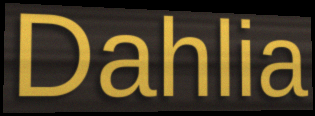
Dahlia